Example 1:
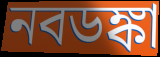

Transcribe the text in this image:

নবডঙ্কা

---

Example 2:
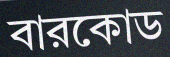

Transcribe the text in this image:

বারকোড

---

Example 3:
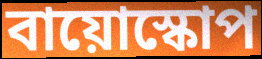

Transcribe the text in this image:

বায়োস্কোপ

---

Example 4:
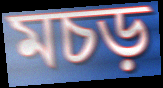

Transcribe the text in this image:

মচড়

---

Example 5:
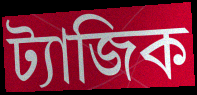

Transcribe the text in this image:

ট্যাজিক